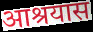
आश्रयास